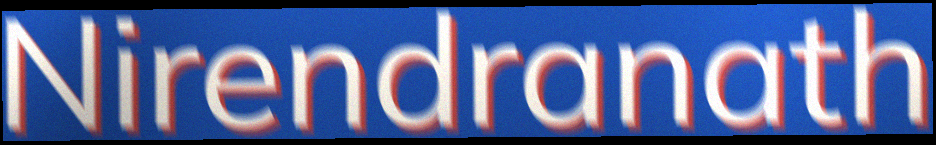
Nirendranath